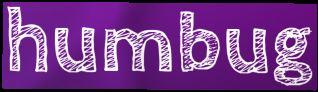
humbug